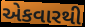
એકવારથી